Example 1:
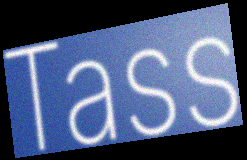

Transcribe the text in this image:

Tass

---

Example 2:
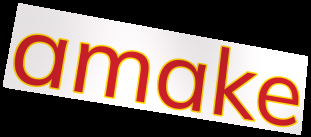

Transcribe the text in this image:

amake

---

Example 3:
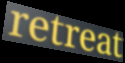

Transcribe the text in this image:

retreat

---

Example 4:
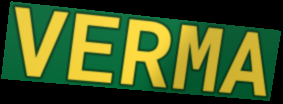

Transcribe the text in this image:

VERMA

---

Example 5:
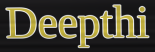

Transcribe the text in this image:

Deepthi